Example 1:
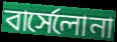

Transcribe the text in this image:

বার্সেলোনা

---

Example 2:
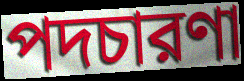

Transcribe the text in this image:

পদচারণা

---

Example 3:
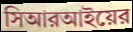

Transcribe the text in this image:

সিআরআইয়ের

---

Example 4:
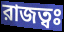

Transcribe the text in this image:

রাজত্বঃ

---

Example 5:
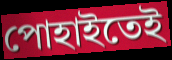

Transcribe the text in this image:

পোহাইতেই